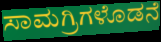
ಸಾಮಗ್ರಿಗಳೊಡನೆ